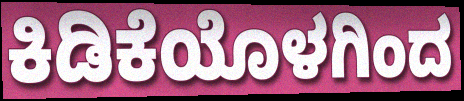
ಕಿಡಿಕೆಯೊಳಗಿಂದ